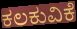
ಕಲಕುವಿಕೆ